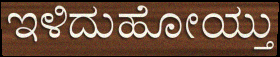
ಇಳಿದುಹೋಯ್ತು